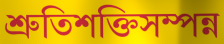
শ্রুতিশক্তিসম্পন্ন